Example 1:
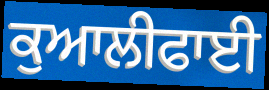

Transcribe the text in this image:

ਕੁਆਲੀਫਾਈ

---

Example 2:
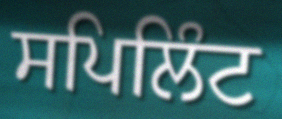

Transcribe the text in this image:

ਸਪਿਲਿੰਟ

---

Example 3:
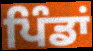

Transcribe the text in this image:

ਪਿੰਡਾਂ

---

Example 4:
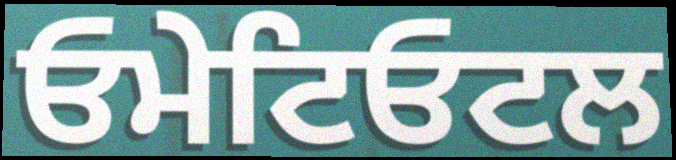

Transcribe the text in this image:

ਓਮੇਟਿਓਟਲ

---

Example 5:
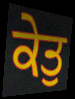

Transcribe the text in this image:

ਕੇਤੁ